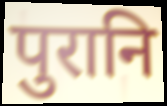
पुरानि